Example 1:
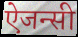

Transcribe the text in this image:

ऐजन्सी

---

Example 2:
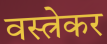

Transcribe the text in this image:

वस्त्रेकर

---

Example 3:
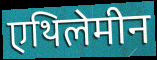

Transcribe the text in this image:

एथिलेमीन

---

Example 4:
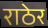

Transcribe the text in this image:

राठेर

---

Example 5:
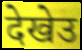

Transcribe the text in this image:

देखेउ